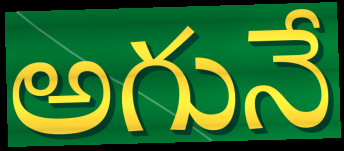
అగునే